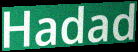
Hadad